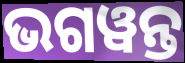
ଭଗୱନ୍ତ